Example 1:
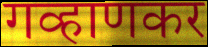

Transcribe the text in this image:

गव्हाणकर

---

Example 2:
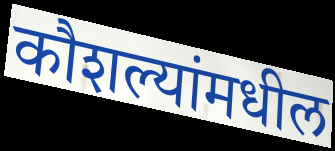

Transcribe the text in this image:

कौशल्यांमधील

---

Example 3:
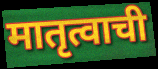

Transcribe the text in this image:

मातृत्वाची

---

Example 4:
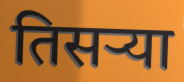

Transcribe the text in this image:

तिसऱ्या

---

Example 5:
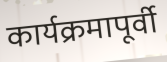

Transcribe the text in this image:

कार्यक्रमापूर्वी